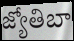
జ్యోతిబా